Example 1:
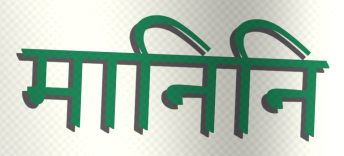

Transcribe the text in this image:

मानिनि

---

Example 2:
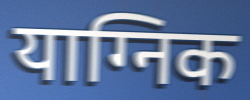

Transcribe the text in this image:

याग्निक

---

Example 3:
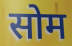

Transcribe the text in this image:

सोम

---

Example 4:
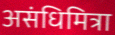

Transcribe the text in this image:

असंधिमित्रा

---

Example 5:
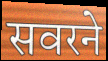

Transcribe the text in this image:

सवरने